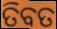
ତିବତ